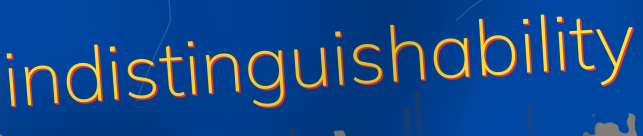
indistinguishability